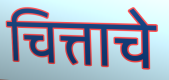
चित्ताचे